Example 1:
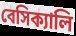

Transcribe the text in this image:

বেসিক্যালি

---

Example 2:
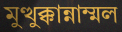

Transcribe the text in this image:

মুত্থুক্কান্নাম্মল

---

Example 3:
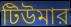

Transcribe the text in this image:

টিউমার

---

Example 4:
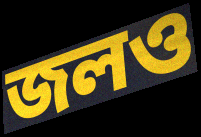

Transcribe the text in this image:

জলও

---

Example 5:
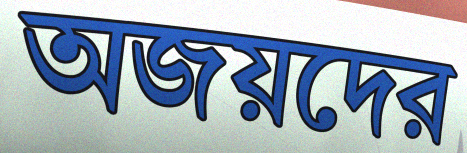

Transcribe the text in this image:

অজয়দের